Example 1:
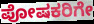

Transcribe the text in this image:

ಪೋಷಕರಿಗೇ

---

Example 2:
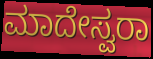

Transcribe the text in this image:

ಮಾದೇಸ್ವರಾ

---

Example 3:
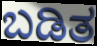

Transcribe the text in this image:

ಬಡಿತ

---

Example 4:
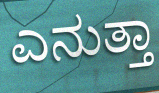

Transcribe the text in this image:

ಎನುತ್ತಾ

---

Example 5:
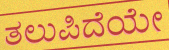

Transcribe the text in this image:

ತಲುಪಿದೆಯೇ